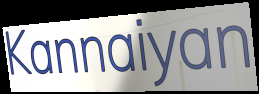
Kannaiyan